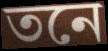
তনে